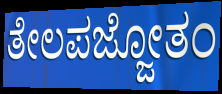
ತೇಲಪಜ್ಜೋತಂ